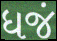
ધજં